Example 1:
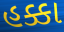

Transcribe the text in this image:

હક્કા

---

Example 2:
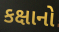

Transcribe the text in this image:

કક્ષાનો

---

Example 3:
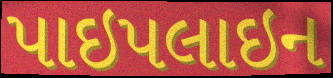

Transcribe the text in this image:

પાઇપલાઇન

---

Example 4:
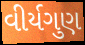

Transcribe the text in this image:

વીર્યગુણ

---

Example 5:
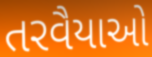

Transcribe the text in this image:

તરવૈયાઓ